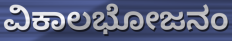
ವಿಕಾಲಭೋಜನಂ